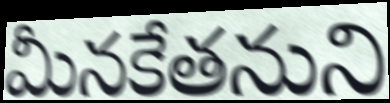
మీనకేతనుని